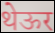
थेऊर